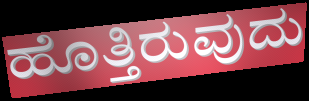
ಹೊತ್ತಿರುವುದು